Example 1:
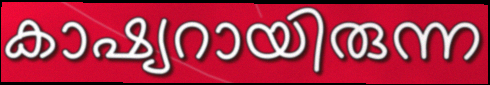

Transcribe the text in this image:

കാഷ്യറായിരുന്ന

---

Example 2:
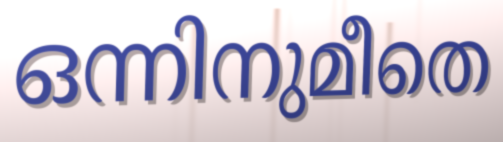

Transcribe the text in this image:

ഒന്നിനുമീതെ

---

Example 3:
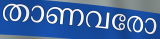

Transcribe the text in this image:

താണവരോ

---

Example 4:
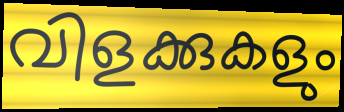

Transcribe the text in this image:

വിളക്കുകളും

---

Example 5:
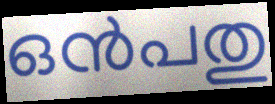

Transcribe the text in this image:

ഒൻപതു